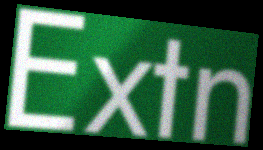
Extn